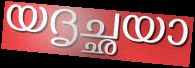
യദൃച്ഛയാ